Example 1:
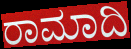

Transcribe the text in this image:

ರಾಮಾದಿ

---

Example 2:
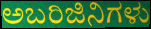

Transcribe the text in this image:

ಅಬರಿಜಿನಿಗಳು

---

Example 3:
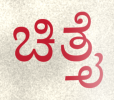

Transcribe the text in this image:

ಚಿತ್ತೈ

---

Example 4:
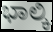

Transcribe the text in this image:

ಭಾಲ್ಕಿ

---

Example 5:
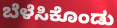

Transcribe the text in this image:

ಬೆಳೆಸಿಕೊಂಡು